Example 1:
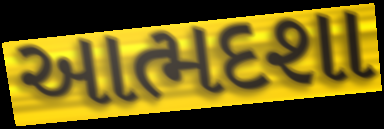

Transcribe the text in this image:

આત્મદશા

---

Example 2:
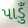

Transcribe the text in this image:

પાડુઁ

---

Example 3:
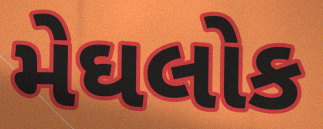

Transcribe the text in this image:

મેઘલોક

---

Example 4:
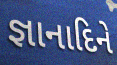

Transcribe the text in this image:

જ્ઞાનાદિને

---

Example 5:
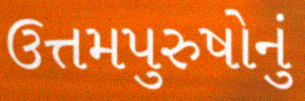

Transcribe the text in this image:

ઉત્તમપુરુષોનું